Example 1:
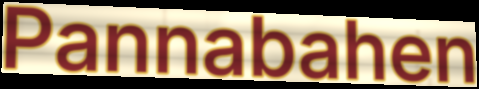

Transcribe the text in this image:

Pannabahen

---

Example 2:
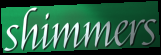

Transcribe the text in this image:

shimmers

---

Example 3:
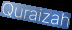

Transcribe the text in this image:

Quraizah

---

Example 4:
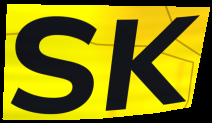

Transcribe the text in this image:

SK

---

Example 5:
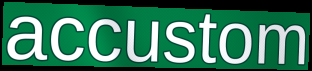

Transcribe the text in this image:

accustom